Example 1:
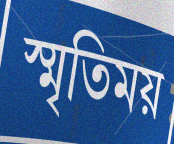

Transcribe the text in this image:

স্মৃতিময়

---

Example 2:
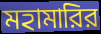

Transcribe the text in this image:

মহামারির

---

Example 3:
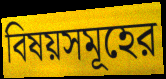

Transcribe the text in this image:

বিষয়সমূহের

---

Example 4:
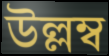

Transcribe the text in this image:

উল্লম্ব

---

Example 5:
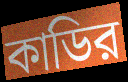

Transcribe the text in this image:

কাডির